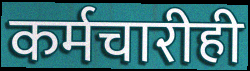
कर्मचारीही